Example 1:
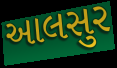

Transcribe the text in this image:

આલસુર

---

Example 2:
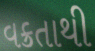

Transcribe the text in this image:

વક્રતાથી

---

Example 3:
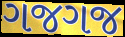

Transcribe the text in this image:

ગજગજ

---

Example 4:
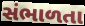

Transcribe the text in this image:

સંભાળતા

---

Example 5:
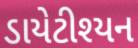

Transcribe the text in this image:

ડાયેટીશ્યન